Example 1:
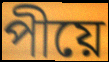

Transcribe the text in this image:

পীয়ে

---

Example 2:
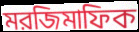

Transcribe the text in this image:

মরজিমাফিক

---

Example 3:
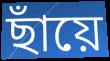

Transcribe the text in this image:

ছাঁয়ে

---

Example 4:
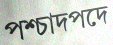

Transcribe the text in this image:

পশ্চাদপদে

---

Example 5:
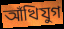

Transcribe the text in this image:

আঁখিযুগ